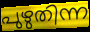
പുഴുതിന്ന